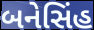
બનેસિંહ